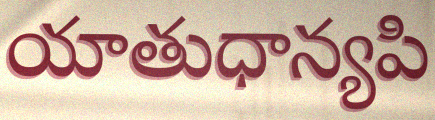
యాతుధాన్యపి